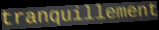
tranquillement